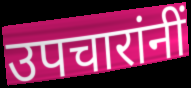
उपचारांनीं